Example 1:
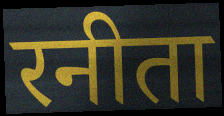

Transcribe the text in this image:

रनीता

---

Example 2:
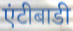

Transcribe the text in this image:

एंटीबाडी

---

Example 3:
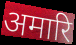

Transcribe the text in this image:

अमारि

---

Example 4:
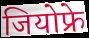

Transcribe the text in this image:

जियोफ्रे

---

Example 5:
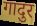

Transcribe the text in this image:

गादुर